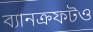
ব্যানক্রফটও